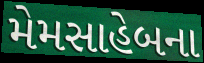
મેમસાહેબના